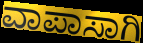
ವಾಪಾಸಾಗಿ